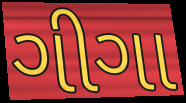
ગીગા